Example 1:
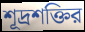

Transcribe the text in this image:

শূদ্রশক্তির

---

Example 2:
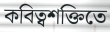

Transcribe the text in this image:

কবিত্বশক্তিতে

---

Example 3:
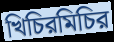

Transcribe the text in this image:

খিচিরমিচির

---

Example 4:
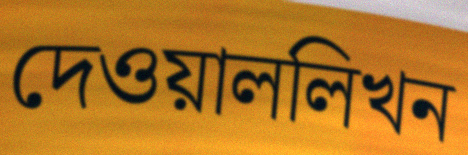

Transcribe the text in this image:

দেওয়াললিখন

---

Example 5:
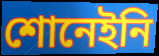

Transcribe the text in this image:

শোনেইনি